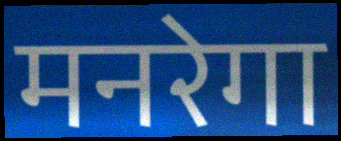
मनरेगा